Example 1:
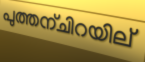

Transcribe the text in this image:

പുത്തന്ചിറയില്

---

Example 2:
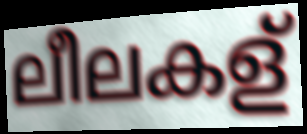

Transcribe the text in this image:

ലീലകള്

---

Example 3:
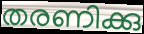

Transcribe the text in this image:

തരണിക്കു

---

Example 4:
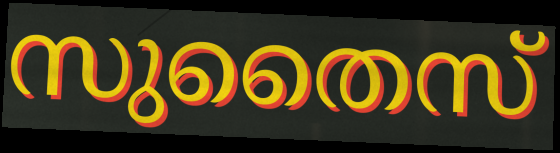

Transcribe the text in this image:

സുതൈസ്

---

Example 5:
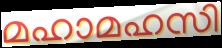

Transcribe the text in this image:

മഹാമഹസി